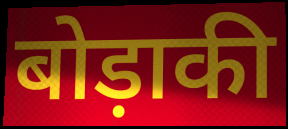
बोड़ाकी